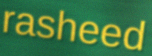
rasheed